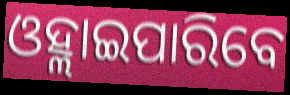
ଓହ୍ଲାଇପାରିବେ